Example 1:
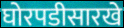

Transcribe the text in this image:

घोरपडीसारखे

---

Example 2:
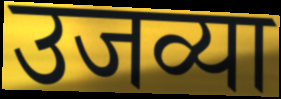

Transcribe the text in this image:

उजव्या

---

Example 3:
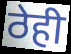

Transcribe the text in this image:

ठेही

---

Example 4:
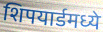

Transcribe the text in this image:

शिपयार्डमध्ये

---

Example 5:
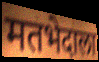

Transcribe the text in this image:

मतभेदाला